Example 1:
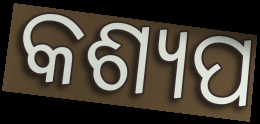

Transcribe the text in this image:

କଶ୍ୟପ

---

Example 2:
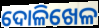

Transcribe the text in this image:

ଦୋଳିଖେଳ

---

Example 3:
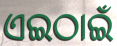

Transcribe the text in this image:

ଏଇଠାଇଁ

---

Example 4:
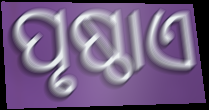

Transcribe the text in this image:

ପୃଷ୍ଠାଏ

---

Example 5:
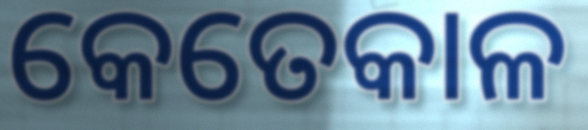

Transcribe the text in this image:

କେତେକାଳ